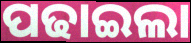
ପଢାଇଲା